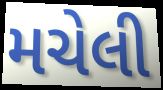
મચેલી